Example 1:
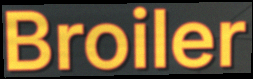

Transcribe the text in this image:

Broiler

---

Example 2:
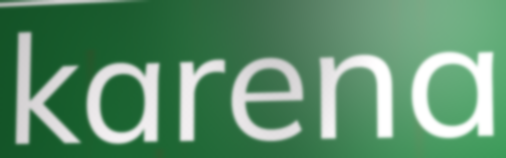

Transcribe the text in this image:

karena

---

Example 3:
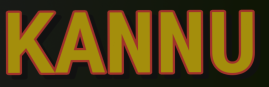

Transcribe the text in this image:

KANNU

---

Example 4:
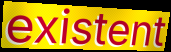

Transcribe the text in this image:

existent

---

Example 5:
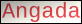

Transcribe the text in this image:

Angada